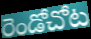
రెండోచోట